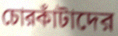
চোরকাঁটাদের